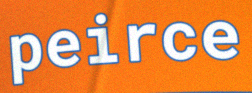
peirce